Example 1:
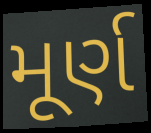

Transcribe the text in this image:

મૂર્ણ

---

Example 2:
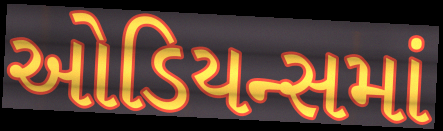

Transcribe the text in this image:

ઓડિયન્સમાં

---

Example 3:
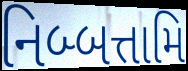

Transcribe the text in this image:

નિબ્બત્તામિ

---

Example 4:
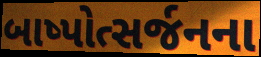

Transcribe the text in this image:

બાષ્પોત્સર્જનના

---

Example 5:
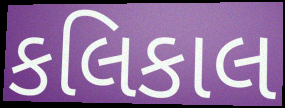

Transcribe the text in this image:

કલિકાલ